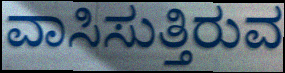
ವಾಸಿಸುತ್ತಿರುವ